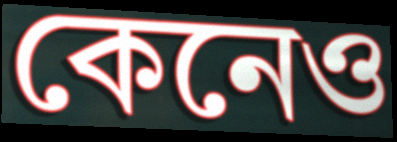
কেনেও